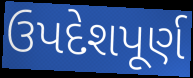
ઉપદેશપૂર્ણ